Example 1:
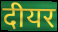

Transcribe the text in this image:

दीयर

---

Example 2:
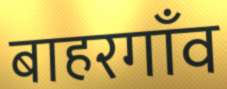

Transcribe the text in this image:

बाहरगाँव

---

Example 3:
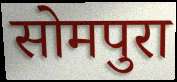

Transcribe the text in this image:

सोमपुरा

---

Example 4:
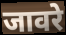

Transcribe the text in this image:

जावरे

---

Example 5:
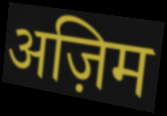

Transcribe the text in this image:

अज़िम